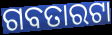
ଗବତାରଟା